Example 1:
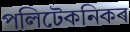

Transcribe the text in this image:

পলিটেকনিকৰ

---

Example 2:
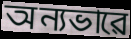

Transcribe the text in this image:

অন্যভাৱে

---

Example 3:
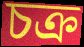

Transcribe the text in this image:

চক্ৰ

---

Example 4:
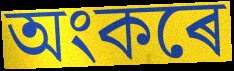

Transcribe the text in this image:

অংকৰে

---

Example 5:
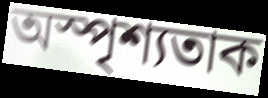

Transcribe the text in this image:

অস্পৃশ্যতাক